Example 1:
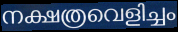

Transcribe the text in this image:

നക്ഷത്രവെളിച്ചം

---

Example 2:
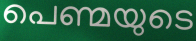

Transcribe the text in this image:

പെണ്മയുടെ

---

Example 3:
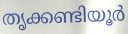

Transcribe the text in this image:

തൃക്കണ്ടിയൂർ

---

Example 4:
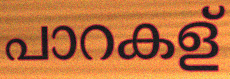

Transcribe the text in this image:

പാറകള്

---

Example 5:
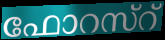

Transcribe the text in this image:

ഫോറസ്റ്